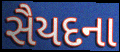
સૈયદના